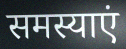
समस्याएं